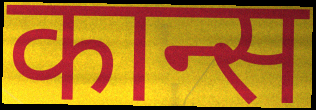
कान्स